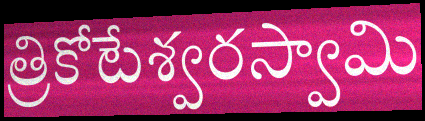
త్రికోటేశ్వరస్వామి